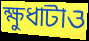
ক্ষুধাটাও